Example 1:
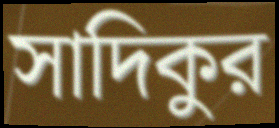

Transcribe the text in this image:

সাদিকুর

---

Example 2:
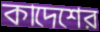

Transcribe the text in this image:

কাদেশের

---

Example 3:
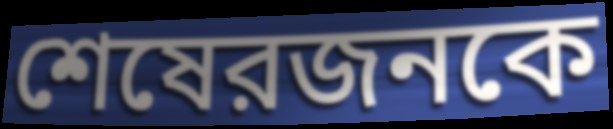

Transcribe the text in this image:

শেষেরজনকে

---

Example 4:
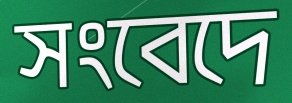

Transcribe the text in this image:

সংবেদে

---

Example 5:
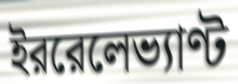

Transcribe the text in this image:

ইররেলেভ্যাণ্ট